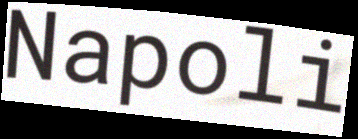
Napoli